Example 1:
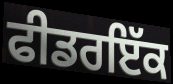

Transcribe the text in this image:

ਫੀਡਰਇੱਕ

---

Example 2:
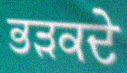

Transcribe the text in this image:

ਭੜਕਦੇ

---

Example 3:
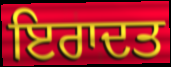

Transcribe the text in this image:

ਇਰਾਦਤ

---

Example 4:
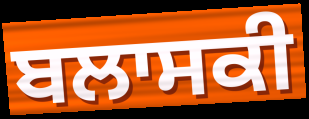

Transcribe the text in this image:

ਬਲਾਸਕੀ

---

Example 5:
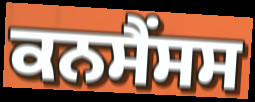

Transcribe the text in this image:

ਕਨਸੈਂਸਸ